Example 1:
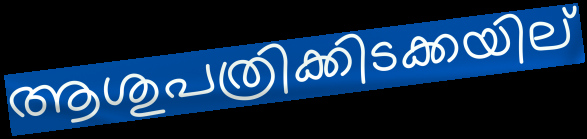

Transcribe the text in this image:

ആശുപത്രിക്കിടക്കയില്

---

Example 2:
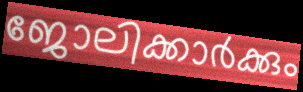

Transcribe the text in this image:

ജോലിക്കാർക്കും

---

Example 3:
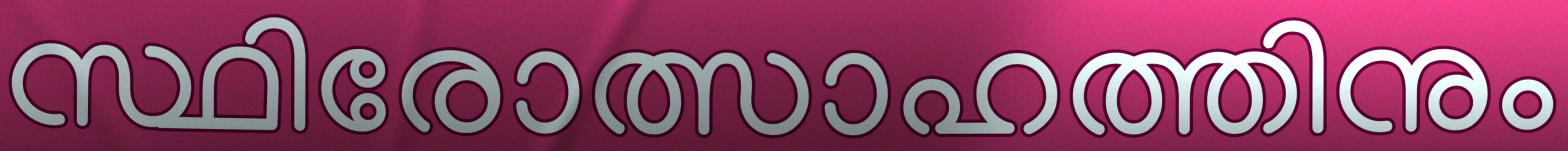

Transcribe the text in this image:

സ്ഥിരോത്സാഹത്തിനും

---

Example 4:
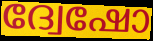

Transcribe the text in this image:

ദ്വേഷോ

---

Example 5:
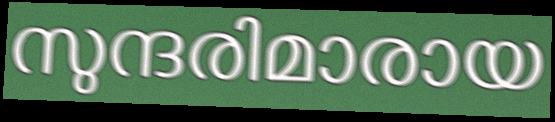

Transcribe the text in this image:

സുന്ദരിമാരായ